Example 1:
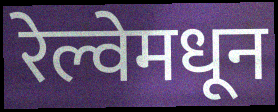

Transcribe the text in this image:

रेल्वेमधून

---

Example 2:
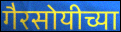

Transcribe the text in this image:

गैरसोयीच्या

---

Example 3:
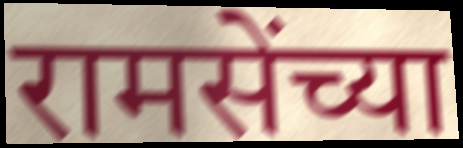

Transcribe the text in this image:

रामसेंच्या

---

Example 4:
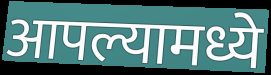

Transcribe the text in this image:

आपल्यामध्ये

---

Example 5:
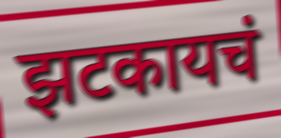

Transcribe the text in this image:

झटकायचं